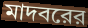
মাদবরের